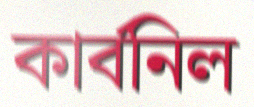
কার্বনিল